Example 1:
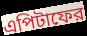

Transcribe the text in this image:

এপিটাফের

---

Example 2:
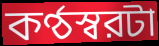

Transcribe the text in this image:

কণ্ঠস্বরটা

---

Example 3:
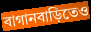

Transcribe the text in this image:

বাগানবাড়িতেও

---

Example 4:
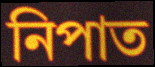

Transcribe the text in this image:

নিপাত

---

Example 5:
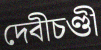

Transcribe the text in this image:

দেবীচণ্ডী